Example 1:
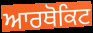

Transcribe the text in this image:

ਆਰਥੋਕਿਟ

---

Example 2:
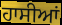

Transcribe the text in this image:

ਹਾਸੀਆਂ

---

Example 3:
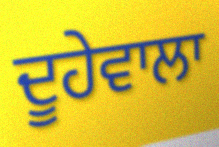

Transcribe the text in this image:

ਦੂਹੇਵਾਲਾ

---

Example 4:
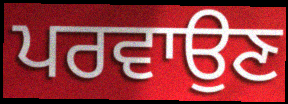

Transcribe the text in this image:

ਪਰਵਾਉਣ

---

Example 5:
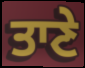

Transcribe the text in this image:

ਤਾਣੇ